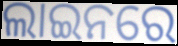
ଲାଇନରେ